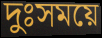
দুঃসময়ে